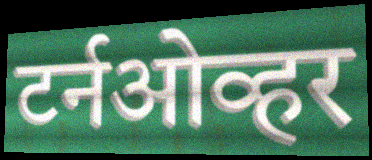
टर्नओव्हर